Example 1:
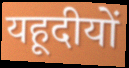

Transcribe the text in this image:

यहूदीयों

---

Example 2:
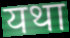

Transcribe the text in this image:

यथा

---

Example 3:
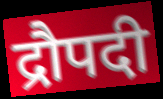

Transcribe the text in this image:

द्रौपदी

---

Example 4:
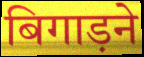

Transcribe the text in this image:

बिगाड़ने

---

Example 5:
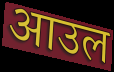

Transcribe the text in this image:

आउल